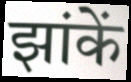
झांकें